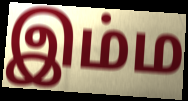
இம்ம